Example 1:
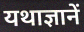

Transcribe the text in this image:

यथाज्ञानें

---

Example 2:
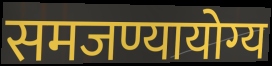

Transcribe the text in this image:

समजण्यायोग्य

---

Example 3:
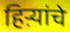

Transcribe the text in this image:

हिऱ्‍यांचे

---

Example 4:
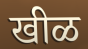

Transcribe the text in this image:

खीळ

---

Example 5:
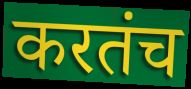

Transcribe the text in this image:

करतंच